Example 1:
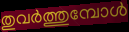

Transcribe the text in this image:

തുവർത്തുമ്പോൾ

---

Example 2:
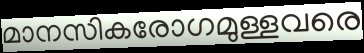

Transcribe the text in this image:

മാനസികരോഗമുള്ളവരെ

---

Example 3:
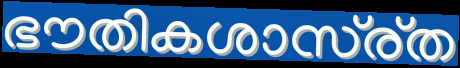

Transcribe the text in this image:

ഭൗതികശാസ്ര്ത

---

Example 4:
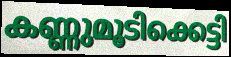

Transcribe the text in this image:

കണ്ണുമൂടിക്കെട്ടി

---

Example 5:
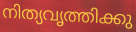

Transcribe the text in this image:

നിത്യവൃത്തിക്കു